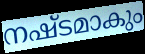
നഷ്ടമാകും